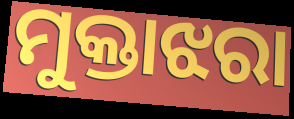
ମୁକ୍ତାଝରା